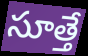
సూత్తే